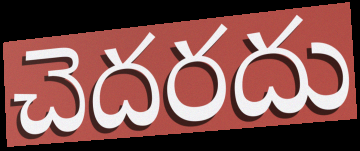
చెదరదు